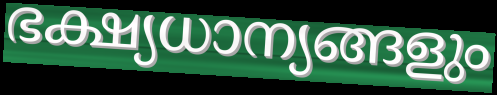
ഭക്ഷ്യധാന്യങ്ങളും